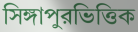
সিঙ্গাপুরভিত্তিক